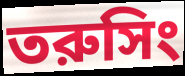
তরুসিং